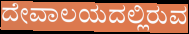
ದೇವಾಲಯದಲ್ಲಿರುವ